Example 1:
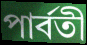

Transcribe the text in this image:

পার্বতী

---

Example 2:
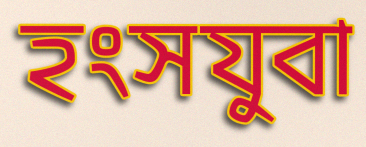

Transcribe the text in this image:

হংসযুবা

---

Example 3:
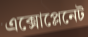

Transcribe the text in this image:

এক্সোপ্লেনেট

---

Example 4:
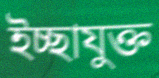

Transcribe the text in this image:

ইচ্ছাযুক্ত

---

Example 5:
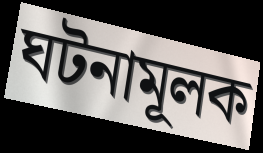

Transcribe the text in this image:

ঘটনামূলক